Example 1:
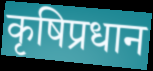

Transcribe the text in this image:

कृषिप्रधान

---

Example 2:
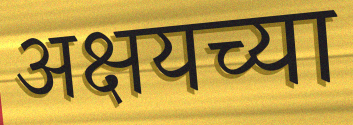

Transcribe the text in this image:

अक्षयच्या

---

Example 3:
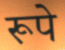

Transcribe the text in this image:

रूपे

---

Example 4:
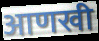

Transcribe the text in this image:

आणखी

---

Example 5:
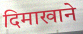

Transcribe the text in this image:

दिमाखाने